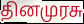
தினமுரசு